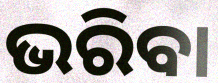
ଭରିବା